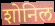
शोनिल